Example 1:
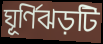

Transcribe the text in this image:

ঘূর্ণিঝড়টি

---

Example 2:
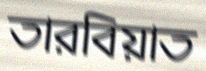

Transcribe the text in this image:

তারবিয়াত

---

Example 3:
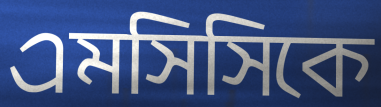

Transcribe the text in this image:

এমসিসিকে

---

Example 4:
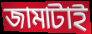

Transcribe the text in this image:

জামাটাই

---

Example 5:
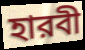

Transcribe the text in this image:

হারবী